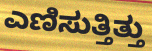
ಎಣಿಸುತ್ತಿತ್ತು